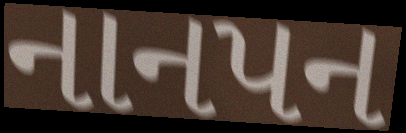
નાનપન